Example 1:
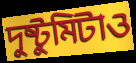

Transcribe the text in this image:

দুষ্টুমিটাও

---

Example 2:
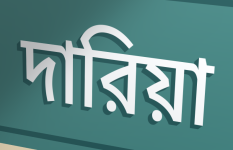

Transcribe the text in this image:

দারিয়া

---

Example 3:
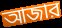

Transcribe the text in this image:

আজার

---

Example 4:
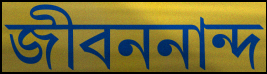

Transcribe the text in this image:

জীবননান্দ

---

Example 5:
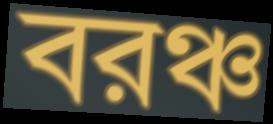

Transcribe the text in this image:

বরঞ্চ